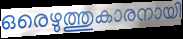
ഒരെഴുത്തുകാരനായി